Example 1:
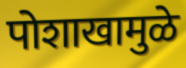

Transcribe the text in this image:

पोशाखामुळे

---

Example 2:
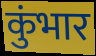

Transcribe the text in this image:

कुंभार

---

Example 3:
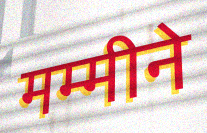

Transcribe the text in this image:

मम्मीने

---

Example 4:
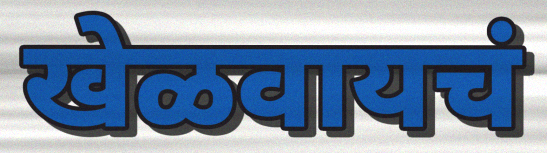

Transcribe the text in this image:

खेळवायचं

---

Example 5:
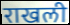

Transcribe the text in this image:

राखली